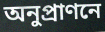
অনুপ্রাণনে